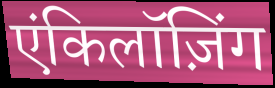
एंकिलॉज़िंग